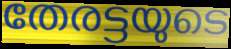
തേരട്ടയുടെ